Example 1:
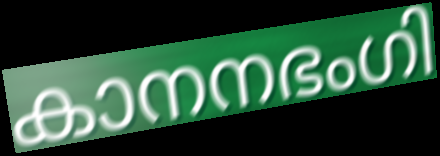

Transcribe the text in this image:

കാനനഭംഗി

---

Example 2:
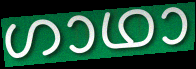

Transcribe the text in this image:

ഗാഥാ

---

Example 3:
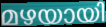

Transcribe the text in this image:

മഴയായി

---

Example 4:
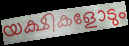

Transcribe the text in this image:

യക്ഷികളോടും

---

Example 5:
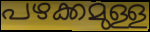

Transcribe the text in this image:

പഴക്കമുള്ള